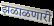
झळाळणारी